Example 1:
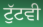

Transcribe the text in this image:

ਟੁੱਟਵੀ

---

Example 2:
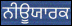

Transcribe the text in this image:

ਨੀਊਯਾਰਕ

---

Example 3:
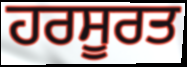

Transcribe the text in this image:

ਹਰਸੂਰਤ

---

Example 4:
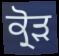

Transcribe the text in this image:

ਕ੍ਰੋੜ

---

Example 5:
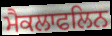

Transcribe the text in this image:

ਮੈਕਲਾਫਲਿਨ